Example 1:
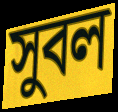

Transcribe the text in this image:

সুবল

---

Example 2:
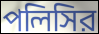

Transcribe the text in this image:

পলিসির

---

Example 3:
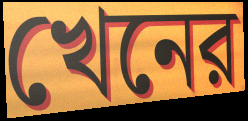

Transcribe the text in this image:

খেনের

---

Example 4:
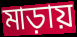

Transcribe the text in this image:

মাড়ায়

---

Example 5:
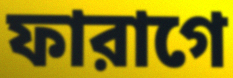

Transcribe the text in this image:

ফারাগে